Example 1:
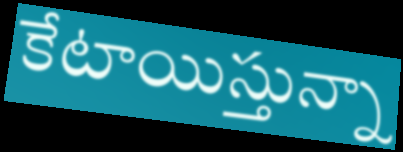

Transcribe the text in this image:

కేటాయిస్తున్నా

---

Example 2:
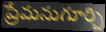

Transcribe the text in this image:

ప్రేమనుగూర్చి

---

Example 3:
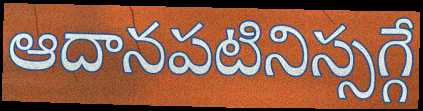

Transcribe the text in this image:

ఆదానపటినిస్సగ్గే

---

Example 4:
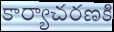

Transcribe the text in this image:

కార్యాచరణకి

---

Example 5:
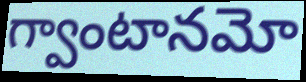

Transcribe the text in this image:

గ్వాంటానమో